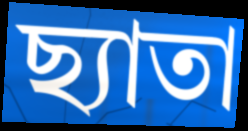
ছ্যাতা